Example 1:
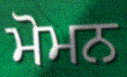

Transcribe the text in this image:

ਮੋਮਨ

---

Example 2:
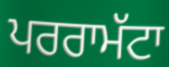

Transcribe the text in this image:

ਪਰਰਾਮੱਟਾ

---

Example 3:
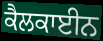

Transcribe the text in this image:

ਕੈਲਕਾਈਨ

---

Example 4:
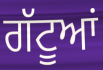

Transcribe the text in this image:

ਗੱਟੂਆਂ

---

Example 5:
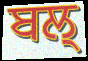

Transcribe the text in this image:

ਬਲ੍